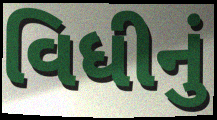
વિધીનું